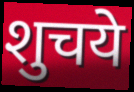
शुचये